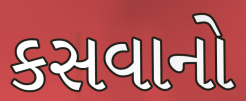
કસવાનો